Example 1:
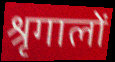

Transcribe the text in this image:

श्रृगालों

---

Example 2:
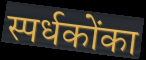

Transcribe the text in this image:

स्पर्धकोंका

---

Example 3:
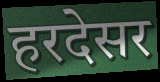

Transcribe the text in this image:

हरदेसर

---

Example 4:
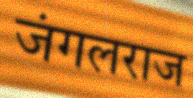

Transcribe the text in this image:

जंगलराज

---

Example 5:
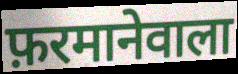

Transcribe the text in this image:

फ़रमानेवाला